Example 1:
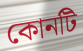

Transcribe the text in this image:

কোনটি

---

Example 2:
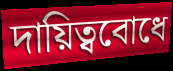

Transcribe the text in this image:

দায়িত্ববোধে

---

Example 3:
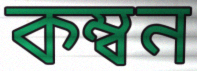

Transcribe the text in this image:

কম্বন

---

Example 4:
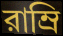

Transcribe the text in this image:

রাম্রি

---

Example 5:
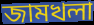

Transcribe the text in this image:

জামখলা